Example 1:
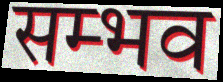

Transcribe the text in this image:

सम्भव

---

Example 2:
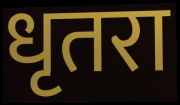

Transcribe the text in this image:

धृतरा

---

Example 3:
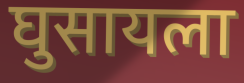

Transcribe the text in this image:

घुसायला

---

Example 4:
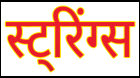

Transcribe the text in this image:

स्ट्रिंग्स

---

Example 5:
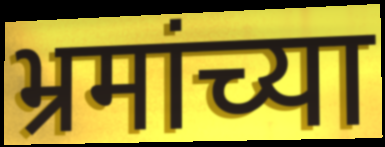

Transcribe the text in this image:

भ्रमांच्या